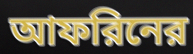
আফরিনের